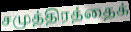
சமுத்திரத்தைக்